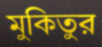
মুকিতুর